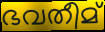
ഭവതീമ്